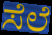
ಸೆಲೆ